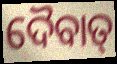
ଦୈବାତ୍